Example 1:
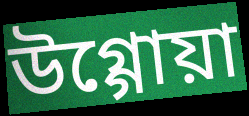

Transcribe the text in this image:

উগ্গোয়া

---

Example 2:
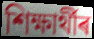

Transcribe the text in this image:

শিক্ষাৰ্থীৰ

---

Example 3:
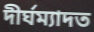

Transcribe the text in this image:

দীৰ্ঘম্যাদত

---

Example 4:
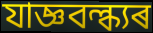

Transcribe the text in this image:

যাজ্ঞবল্ক্যৰ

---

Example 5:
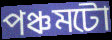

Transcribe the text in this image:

পঞ্চমটো